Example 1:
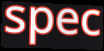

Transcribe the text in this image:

spec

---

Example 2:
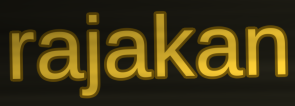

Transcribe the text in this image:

rajakan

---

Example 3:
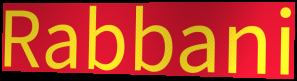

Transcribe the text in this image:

Rabbani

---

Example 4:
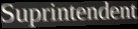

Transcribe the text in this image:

Suprintendent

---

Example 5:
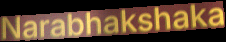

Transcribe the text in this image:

Narabhakshaka